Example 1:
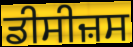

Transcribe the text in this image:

ਡੀਸੀਜ਼ਸ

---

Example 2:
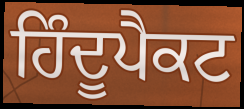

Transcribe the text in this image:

ਹਿੰਦੂਪੈਕਟ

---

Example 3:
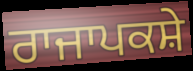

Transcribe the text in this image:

ਰਾਜਾਪਕਸ਼ੇ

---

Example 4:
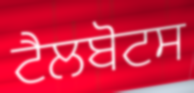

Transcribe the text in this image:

ਟੈਲਬੋਟਸ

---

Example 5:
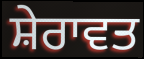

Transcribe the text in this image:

ਸ਼ੇਰਾਵਤ